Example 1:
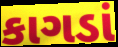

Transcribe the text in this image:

કાગડાં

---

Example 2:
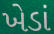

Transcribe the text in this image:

ખેડાં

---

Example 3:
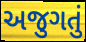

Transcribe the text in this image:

અજુગતું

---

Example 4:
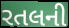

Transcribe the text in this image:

રતલની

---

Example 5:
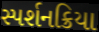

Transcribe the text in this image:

સ્પર્શનક્રિયા